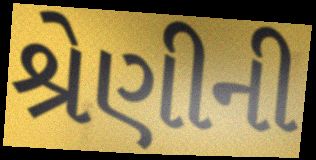
શ્રેણીની